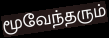
மூவேந்தரும்